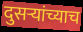
दुसऱ्यांच्याच